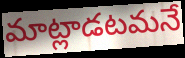
మాట్లాడటమనే